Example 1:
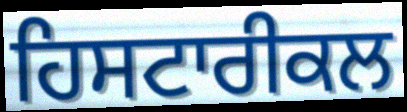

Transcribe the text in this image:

ਹਿਸਟਾਰੀਕਲ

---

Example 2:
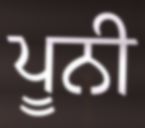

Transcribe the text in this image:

ਪੂਨੀ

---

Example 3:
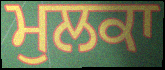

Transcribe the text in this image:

ਮੁਲਕਾ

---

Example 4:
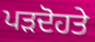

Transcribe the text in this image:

ਪੜਦੋਹਤੇ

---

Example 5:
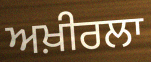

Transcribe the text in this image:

ਅਖ਼ੀਰਲਾ